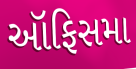
ઑફિસમા